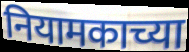
नियामकाच्या